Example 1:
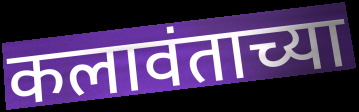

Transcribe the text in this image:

कलावंताच्या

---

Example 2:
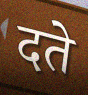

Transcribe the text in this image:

दते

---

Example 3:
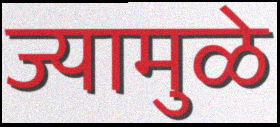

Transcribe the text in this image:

ज्यामुळे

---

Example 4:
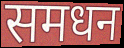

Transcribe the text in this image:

समधन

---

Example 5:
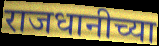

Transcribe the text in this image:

राजधानीच्या